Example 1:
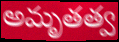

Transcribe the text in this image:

అమృతత్వ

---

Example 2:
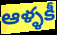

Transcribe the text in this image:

ఆళ్ళకీ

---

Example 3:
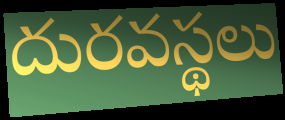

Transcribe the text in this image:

దురవస్థలు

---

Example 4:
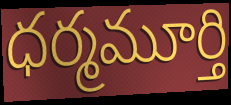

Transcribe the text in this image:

ధర్మమూర్తి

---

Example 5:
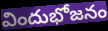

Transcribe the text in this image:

విందుభోజనం